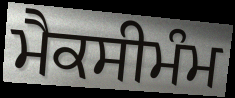
ਮੈਕਸੀਮੰਮ